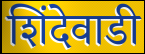
शिंदेवाडी